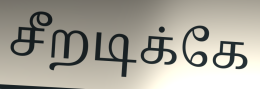
சீறடிக்கே